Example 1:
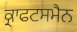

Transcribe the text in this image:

ਕ੍ਰਾਫਟਸਮੈਨ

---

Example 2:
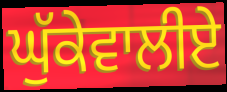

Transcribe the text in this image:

ਘੁੱਕੇਵਾਲੀਏ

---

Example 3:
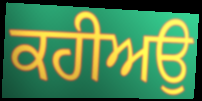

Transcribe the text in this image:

ਕਹੀਅਉ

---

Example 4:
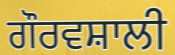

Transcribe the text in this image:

ਗੌਰਵਸ਼ਾਲੀ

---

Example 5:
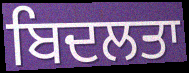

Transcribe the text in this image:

ਬਿਦਲਤਾ